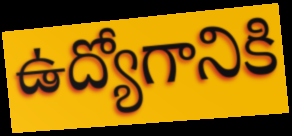
ఉద్యోగానికి